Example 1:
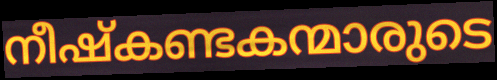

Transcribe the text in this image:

നീഷ്കണ്ടകന്മാരുടെ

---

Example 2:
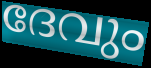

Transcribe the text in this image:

ദേവും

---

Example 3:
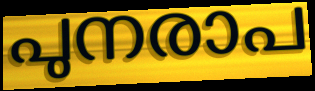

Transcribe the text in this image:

പുനരാപ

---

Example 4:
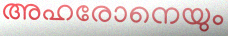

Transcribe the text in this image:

അഹരോനെയും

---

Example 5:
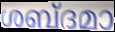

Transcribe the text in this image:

ശബ്ദമാ